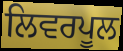
ਲਿਵਰਪੂਲ